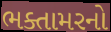
ભક્તામરનો